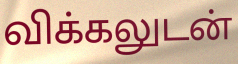
விக்கலுடன்